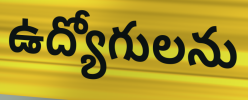
ఉద్యోగులను